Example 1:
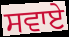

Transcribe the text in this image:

ਸਵਾਏ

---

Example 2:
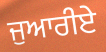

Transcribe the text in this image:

ਜੁਆਰੀਏ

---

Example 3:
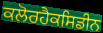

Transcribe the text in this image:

ਕਲੋਰਹੈਕਸਿਡੀਨ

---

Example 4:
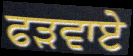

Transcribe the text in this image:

ਫੜਵਾਏ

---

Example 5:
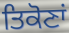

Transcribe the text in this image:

ਤਿਕੋਣਾਂ